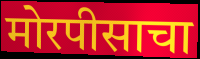
मोरपीसाचा